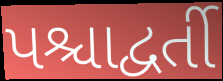
પશ્ચાદ્વર્તી